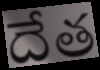
దేత